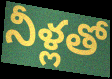
నీళ్లతో